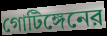
গোটিঙ্গেনের